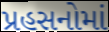
પ્રહસનોમાં